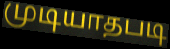
முடியாதபடி